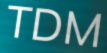
TDM